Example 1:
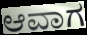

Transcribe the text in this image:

ಆವಾಗ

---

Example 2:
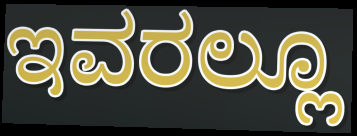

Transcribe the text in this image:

ಇವರಲ್ಲೂ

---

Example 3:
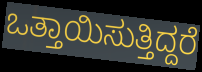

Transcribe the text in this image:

ಒತ್ತಾಯಿಸುತ್ತಿದ್ದರೆ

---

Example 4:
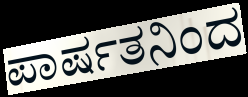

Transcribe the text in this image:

ಪಾರ್ಷತನಿಂದ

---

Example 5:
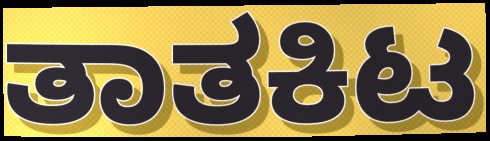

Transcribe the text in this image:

ತಾತಕಿಟ